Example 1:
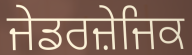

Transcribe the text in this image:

ਜੇਡਰਜ਼ੇਜਿਕ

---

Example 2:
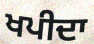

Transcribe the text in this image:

ਖਪੀਦਾ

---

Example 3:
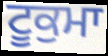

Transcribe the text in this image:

ਟੂਕੁਮਾ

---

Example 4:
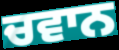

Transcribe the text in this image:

ਚਵਾਨ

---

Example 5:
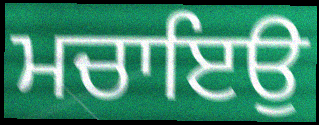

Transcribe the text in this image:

ਮਚਾਇਉ